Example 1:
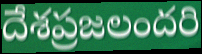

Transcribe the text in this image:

దేశప్రజలందరి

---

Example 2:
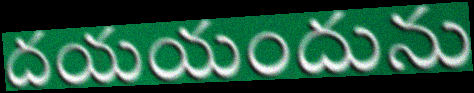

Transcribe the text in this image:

దయయందును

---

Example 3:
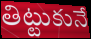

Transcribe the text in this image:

తిట్టుకునే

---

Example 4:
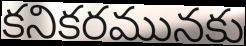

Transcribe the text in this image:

కనికరమునకు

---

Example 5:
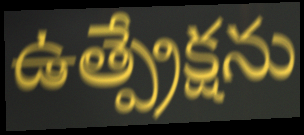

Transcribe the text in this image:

ఉత్ప్రేక్షను